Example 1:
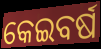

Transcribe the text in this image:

କେଇବର୍ଷ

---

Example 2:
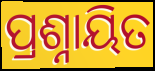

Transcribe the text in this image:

ପ୍ରଶ୍ନାୟିତ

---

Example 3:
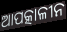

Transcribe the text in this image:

ଆପତ୍କାଳୀନ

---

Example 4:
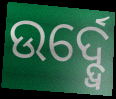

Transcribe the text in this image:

ଉର୍ଦ୍ଦ୍ୱେ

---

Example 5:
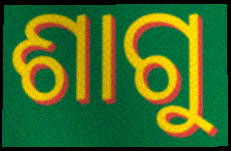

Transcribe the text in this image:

ଶାଗୁ